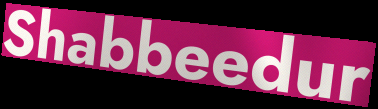
Shabbeedur